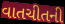
વાતચીતની